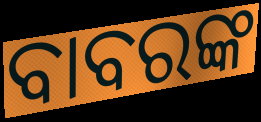
ବାବରଙ୍କ